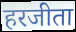
हरजीता